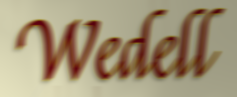
Wedell